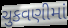
ચુકવણીમાં